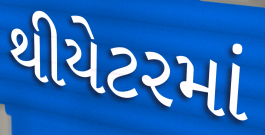
થીયેટરમાં